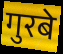
गुरबे